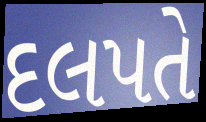
દલપતે